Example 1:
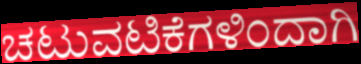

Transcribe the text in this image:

ಚಟುವಟಿಕೆಗಳಿಂದಾಗಿ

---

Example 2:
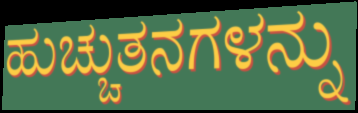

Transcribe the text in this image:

ಹುಚ್ಚುತನಗಳನ್ನು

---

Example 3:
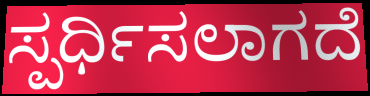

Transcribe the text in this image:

ಸ್ಪರ್ಧಿಸಲಾಗದೆ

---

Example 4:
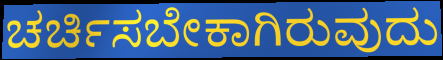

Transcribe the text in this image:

ಚರ್ಚಿಸಬೇಕಾಗಿರುವುದು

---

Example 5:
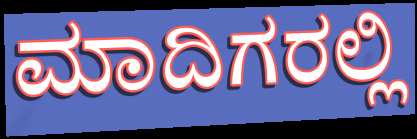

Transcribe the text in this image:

ಮಾದಿಗರಲ್ಲಿ